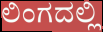
ಲಿಂಗದಲ್ಲಿ